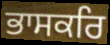
ਭਾਸਕਰਿ